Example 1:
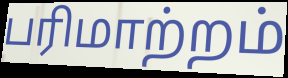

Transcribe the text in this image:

பரிமாற்றம்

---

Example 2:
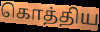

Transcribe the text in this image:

கொத்திய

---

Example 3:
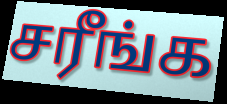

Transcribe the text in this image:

சரீங்க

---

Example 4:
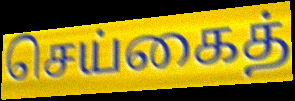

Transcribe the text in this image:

செய்கைத்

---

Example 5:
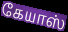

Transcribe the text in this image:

கேயாஸ்